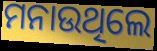
ମନାଉଥିଲେ